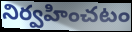
నిర్వహించటం